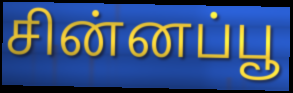
சின்னப்பூ